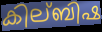
കില്ബിഷ